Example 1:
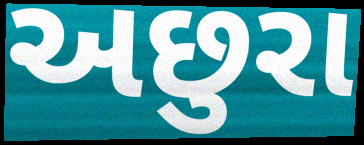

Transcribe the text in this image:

અછુરા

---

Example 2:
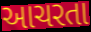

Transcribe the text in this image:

આચરતા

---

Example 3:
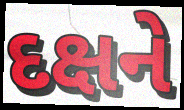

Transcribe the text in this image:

દક્ષને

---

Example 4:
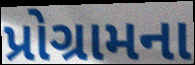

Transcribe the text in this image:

પ્રોગ્રામના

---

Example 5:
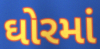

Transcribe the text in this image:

ઘોરમાં